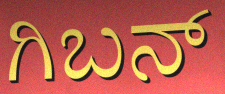
ಗಿಬನ್